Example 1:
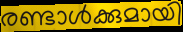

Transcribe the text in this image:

രണ്ടാൾക്കുമായി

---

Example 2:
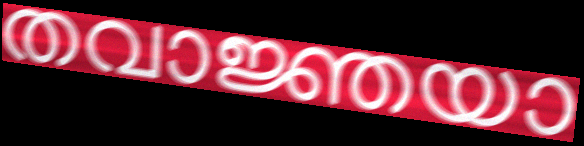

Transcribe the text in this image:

തവാജ്ഞയാ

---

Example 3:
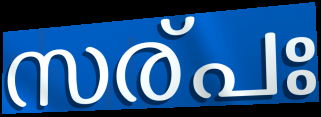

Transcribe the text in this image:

സര്പഃ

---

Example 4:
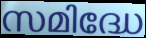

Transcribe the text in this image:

സമിദ്ധേ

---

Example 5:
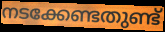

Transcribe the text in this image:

നടക്കേണ്ടതുണ്ട്